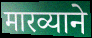
मारव्याने